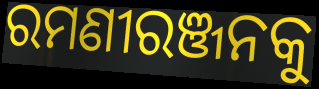
ରମଣୀରଞ୍ଜନକୁ